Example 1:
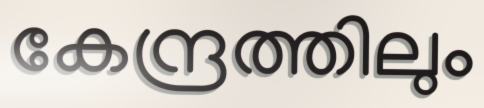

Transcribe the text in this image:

കേന്ദ്രത്തിലും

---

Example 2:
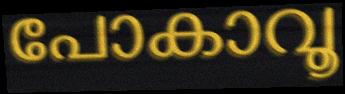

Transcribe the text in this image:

പോകാവൂ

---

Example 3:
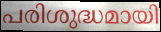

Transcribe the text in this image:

പരിശുദ്ധമായി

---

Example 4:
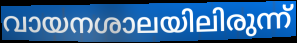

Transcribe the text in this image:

വായനശാലയിലിരുന്ന്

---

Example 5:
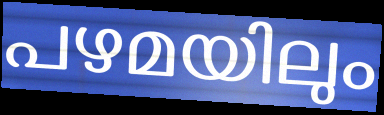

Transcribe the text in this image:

പഴമയിലും